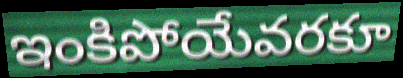
ఇంకిపోయేవరకూ